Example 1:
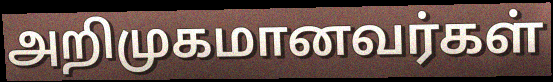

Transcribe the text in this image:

அறிமுகமானவர்கள்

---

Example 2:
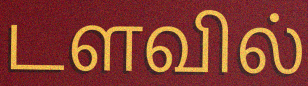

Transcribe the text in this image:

டளவில்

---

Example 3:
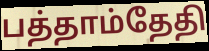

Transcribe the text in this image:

பத்தாம்தேதி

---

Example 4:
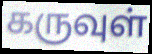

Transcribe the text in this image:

கருவுள்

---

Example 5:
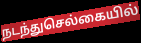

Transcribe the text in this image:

நடந்துசெல்கையில்